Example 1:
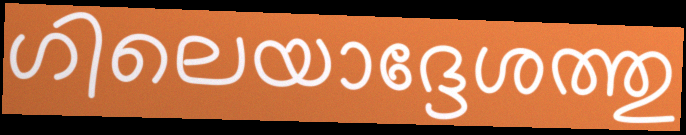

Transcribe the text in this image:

ഗിലെയാദ്ദേശത്തു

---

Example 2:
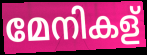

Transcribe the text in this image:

മേനികള്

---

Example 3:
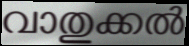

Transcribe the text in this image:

വാതുക്കൽ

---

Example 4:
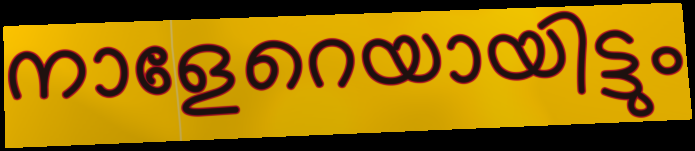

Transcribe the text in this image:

നാളേറെയായിട്ടും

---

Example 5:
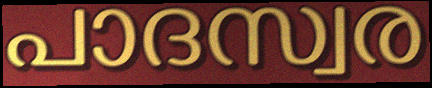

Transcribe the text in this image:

പാദസ്വര